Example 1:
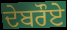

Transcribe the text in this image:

ਦੇਬਰੌਏ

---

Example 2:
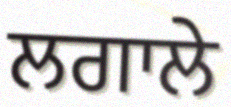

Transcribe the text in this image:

ਲਗਾਲੇ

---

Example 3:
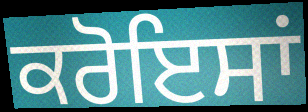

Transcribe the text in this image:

ਕਰੋਇਸਾਂ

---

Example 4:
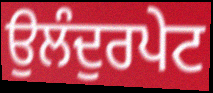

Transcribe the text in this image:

ਉਲੰਦੁਰਪੇਟ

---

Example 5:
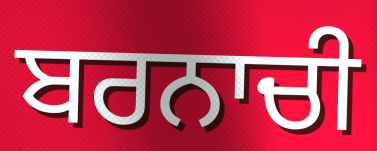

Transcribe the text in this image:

ਬਰਨਾਚੀ